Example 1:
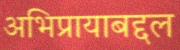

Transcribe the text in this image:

अभिप्रायाबद्दल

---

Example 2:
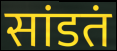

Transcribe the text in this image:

सांडतं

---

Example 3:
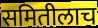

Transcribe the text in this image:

समितीलाच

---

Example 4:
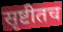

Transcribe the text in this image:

सृष्टीतच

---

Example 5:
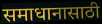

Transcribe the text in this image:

समाधानासाठी